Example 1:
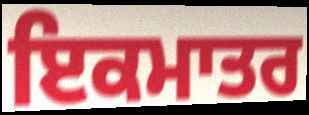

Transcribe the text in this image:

ਇਕਮਾਤਰ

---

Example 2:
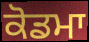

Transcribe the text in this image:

ਕੋਡਮਾ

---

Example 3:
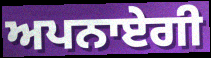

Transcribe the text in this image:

ਅਪਨਾਏਗੀ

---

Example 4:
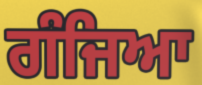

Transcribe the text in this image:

ਗੰਜਿਆ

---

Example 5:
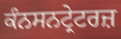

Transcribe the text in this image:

ਕੰਨਸਨਟ੍ਰੇਟਰਜ਼